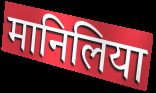
मानिलिया